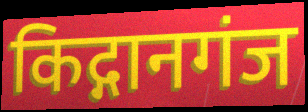
किद्गानगंज